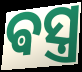
ଵସ୍ତ୍ର